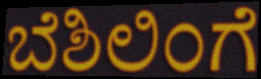
ಬೆಶಿಲಿಂಗೆ